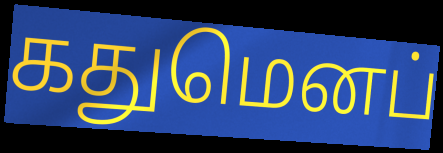
கதுமெனப்